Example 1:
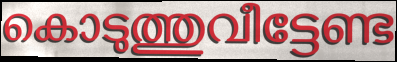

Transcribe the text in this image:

കൊടുത്തുവീട്ടേണ്ട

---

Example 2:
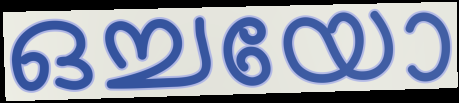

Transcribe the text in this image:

ഒച്ചയോ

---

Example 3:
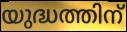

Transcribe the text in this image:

യുദ്ധത്തിന്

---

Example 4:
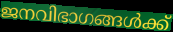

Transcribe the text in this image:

ജനവിഭാഗങ്ങൾക്ക്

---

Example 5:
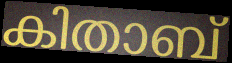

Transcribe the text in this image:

കിതാബ്